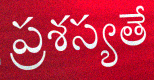
ప్రశస్యతే